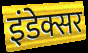
इंडेक्सर